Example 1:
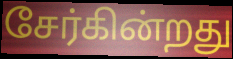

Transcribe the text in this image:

சேர்கின்றது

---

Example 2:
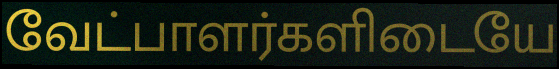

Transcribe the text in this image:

வேட்பாளர்களிடையே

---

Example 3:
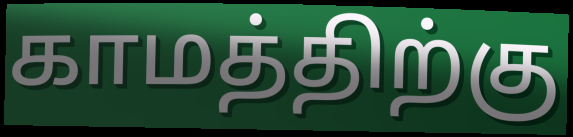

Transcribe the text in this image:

காமத்திற்கு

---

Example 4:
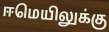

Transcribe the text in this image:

ஈமெயிலுக்கு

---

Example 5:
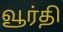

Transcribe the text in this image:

வூர்தி